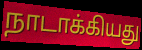
நாடாக்கியது